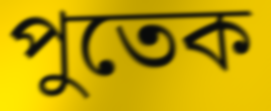
পুতেক